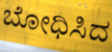
ಬೋಧಿಸಿದ